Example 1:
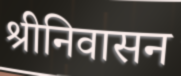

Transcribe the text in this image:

श्रीनिवासन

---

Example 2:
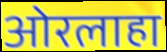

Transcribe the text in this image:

ओरलाहा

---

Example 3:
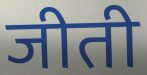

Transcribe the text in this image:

जीती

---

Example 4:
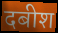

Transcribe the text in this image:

दबीश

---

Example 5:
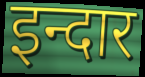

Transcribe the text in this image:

इन्दार